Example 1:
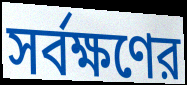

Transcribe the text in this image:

সর্বক্ষণের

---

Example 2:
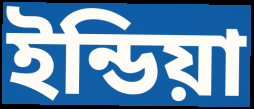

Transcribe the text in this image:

ইন্ডিয়া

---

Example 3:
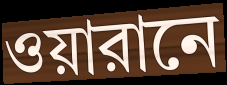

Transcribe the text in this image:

ওয়ারানে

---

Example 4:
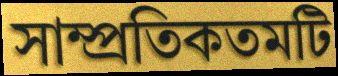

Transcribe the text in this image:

সাম্প্রতিকতমটি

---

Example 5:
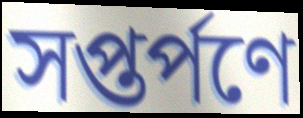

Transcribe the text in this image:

সপ্তর্পণে